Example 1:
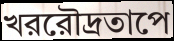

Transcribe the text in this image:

খররৌদ্রতাপে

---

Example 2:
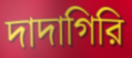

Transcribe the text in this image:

দাদাগিরি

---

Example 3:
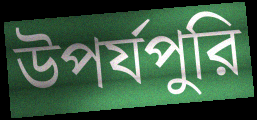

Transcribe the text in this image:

উপর্যপুরি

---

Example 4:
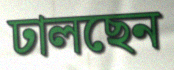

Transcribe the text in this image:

ঢালছেন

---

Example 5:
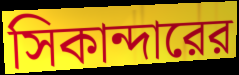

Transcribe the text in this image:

সিকান্দারের